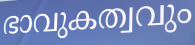
ഭാവുകത്വവും